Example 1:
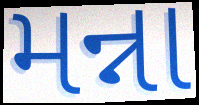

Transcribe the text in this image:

મન્ના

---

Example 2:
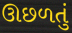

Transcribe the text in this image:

ઊછળતું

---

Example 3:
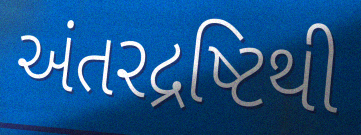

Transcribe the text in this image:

અંતરદ્રષ્ટિથી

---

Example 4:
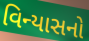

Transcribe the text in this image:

વિન્યાસનો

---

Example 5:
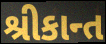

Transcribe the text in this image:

શ્રીકાન્ત